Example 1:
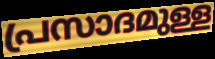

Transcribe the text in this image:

പ്രസാദമുള്ള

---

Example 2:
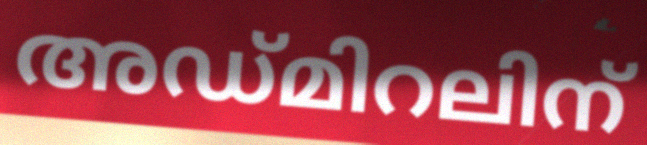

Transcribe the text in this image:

അഡ്മിറലിന്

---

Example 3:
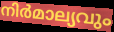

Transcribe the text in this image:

നിർമാല്യവും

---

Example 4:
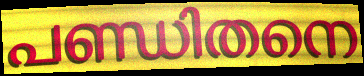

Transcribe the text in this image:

പണ്ഡിതനെ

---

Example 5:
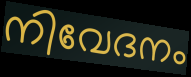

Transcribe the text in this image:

നിവേദനം